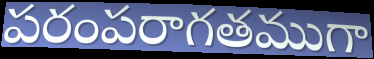
పరంపరాగతముగా